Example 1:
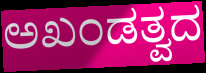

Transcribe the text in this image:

ಅಖಂಡತ್ವದ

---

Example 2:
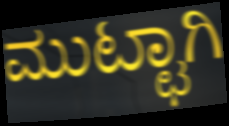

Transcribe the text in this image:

ಮುಟ್ಟಾಗಿ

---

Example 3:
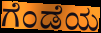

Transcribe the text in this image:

ಗೆಂಡೆಯ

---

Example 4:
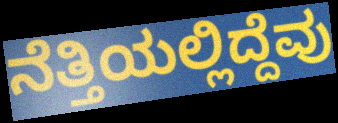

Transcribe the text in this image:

ನೆತ್ತಿಯಲ್ಲಿದ್ದೆವು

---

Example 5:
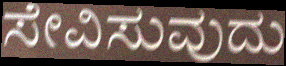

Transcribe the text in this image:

ಸೇವಿಸುವುದು